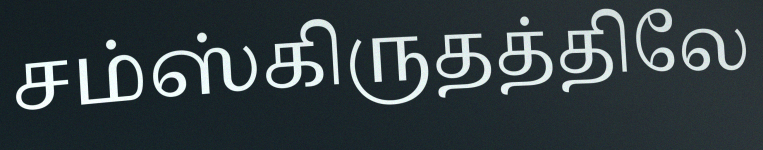
சம்ஸ்கிருதத்திலே